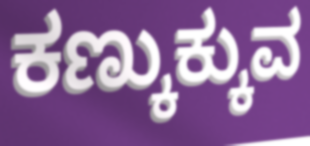
ಕಣ್ಕುಕ್ಕುವ